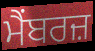
ਮੈਂਬਰਜ਼